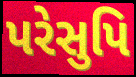
પરેસુપિ